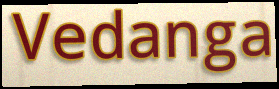
Vedanga